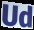
Ud